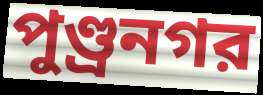
পুণ্ড্রনগর